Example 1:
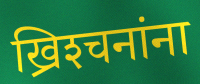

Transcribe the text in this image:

ख्रिश्‍चनांना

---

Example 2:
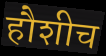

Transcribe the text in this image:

हौशीच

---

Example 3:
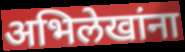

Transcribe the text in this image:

अभिलेखांना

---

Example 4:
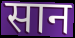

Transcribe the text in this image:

सान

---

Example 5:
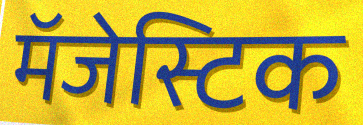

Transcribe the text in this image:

मॅजेस्टिक